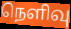
நெளிவு